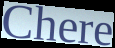
Chere